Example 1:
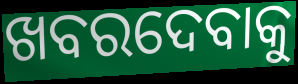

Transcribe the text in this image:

ଖବରଦେବାକୁ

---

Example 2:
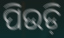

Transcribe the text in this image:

ପିଉଡ଼ି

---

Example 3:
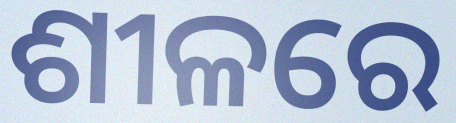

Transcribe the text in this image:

ଶୀଳରେ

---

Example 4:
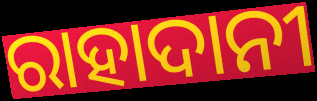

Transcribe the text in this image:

ରାହାଦାନୀ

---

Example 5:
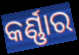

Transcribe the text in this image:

କର୍ଣ୍ଣାର